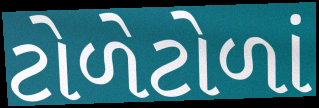
ટોળેટોળાં